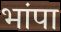
भांपा